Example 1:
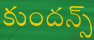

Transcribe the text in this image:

కుందన్స్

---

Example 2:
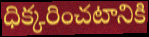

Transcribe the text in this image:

ధిక్కరించటానికి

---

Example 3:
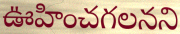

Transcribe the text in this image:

ఊహించగలనని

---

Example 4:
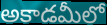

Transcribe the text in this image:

అకాడమీలో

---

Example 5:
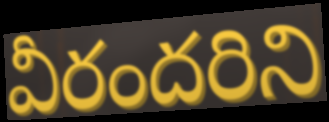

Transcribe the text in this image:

వీరందరిని